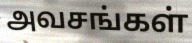
அவசங்கள்